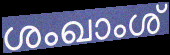
ശംഖാംശ്